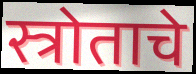
स्त्रोताचे